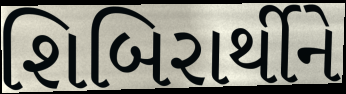
શિબિરાર્થીને